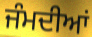
ਜੰਮਦੀਆਂ